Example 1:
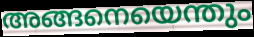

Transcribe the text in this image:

അങ്ങനെയെന്തും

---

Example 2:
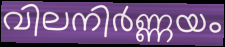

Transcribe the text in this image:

വിലനിർണ്ണയം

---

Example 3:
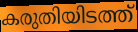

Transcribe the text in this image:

കരുതിയിടത്ത്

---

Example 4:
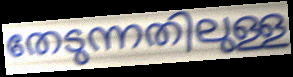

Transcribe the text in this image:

തേടുന്നതിലുള്ള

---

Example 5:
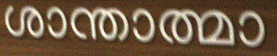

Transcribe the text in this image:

ശാന്താത്മാ